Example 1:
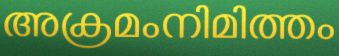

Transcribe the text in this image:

അക്രമംനിമിത്തം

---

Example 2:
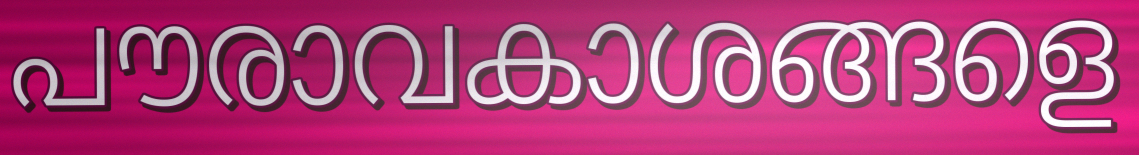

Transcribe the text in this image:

പൗരാവകാശങ്ങളെ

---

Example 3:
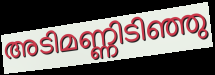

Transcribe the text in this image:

അടിമണ്ണിടിഞ്ഞു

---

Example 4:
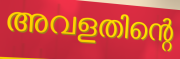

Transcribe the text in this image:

അവളതിന്റെ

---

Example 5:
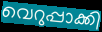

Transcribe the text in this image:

വെറുപ്പാക്കി